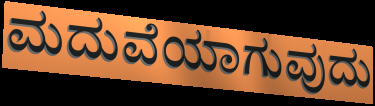
ಮದುವೆಯಾಗುವುದು